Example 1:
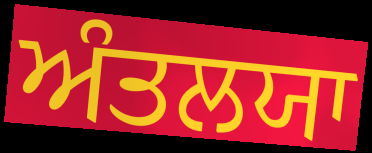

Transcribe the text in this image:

ਅੰਤਲਯਾ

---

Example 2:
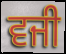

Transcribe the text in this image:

ਵਜੀ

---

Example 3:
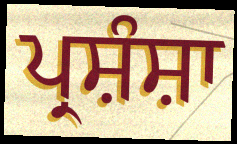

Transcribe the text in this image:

ਪ੍ਰਸ਼ੰਸ਼ਾ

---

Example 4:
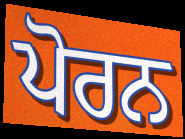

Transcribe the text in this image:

ਪੋਰਨ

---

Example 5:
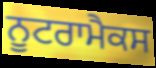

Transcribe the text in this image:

ਨੂਟਰਾਮੈਕਸ